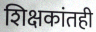
शिक्षकांतही